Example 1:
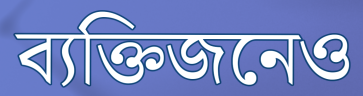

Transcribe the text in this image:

ব্যক্তিজনেও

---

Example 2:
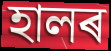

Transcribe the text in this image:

হালৰ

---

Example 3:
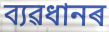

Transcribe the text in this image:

ব্যৱধানৰ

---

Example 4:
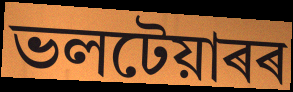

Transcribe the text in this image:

ভলটেয়াৰৰ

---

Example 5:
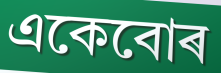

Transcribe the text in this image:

একেবোৰ